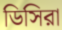
ডিসিরা